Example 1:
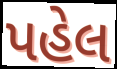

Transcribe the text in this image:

પહેલ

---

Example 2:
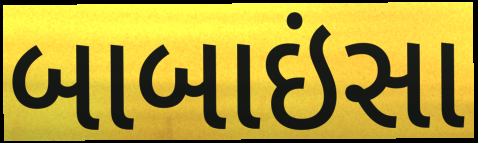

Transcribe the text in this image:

બાબાઇંસા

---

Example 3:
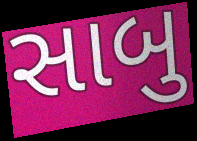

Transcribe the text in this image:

સાબુ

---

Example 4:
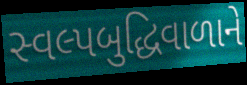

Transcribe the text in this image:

સ્વલ્પબુદ્ધિવાળાને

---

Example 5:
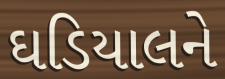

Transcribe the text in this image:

ઘડિયાલને